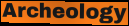
Archeology